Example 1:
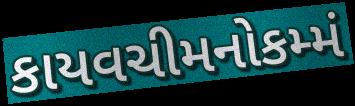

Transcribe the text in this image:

કાયવચીમનોકમ્મં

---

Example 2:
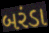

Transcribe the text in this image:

બરંડા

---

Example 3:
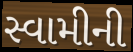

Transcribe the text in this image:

સ્વામીની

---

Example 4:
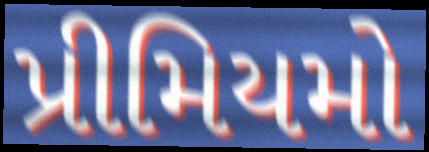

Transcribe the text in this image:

પ્રીમિયમો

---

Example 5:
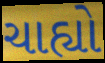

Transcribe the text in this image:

ચાહ્યો